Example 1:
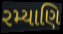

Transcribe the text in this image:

રમ્યાણિ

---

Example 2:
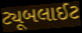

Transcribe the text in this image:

ટ્યૂબલાઈટ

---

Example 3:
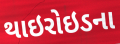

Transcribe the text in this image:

થાઇરોઇડના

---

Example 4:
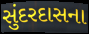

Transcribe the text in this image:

સુંદરદાસના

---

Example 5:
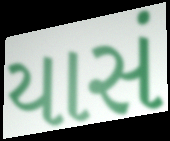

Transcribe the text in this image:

યાસં